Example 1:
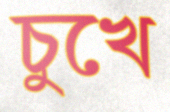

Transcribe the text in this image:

চুখে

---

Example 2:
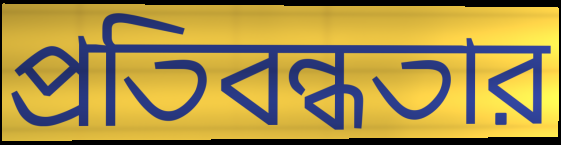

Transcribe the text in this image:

প্রতিবন্ধতার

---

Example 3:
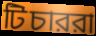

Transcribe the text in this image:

টিচাররা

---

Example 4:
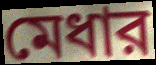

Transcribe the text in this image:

মেধার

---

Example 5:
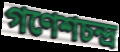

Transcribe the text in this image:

গণেশচন্দ্র